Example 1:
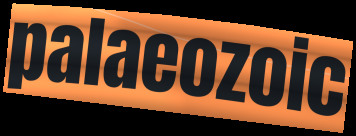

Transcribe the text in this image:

palaeozoic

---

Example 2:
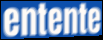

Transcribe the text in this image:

entente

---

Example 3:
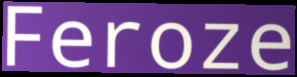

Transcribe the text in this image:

Feroze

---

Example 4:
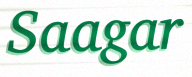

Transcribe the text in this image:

Saagar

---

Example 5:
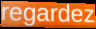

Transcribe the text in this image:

regardez